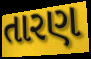
તારણ